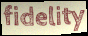
fidelity